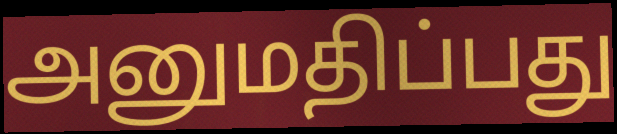
அனுமதிப்பது